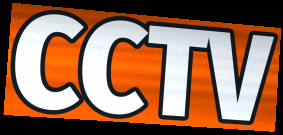
CCTV